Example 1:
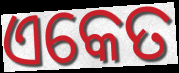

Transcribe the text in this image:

ଏକେତ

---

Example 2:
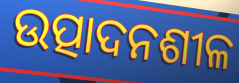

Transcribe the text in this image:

ଉତ୍ପାଦନଶୀଳ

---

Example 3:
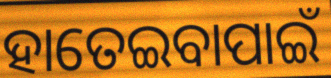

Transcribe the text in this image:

ହାତେଇବାପାଇଁ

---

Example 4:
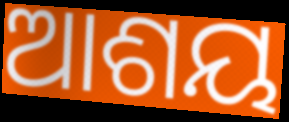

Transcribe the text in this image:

ଆଶୟ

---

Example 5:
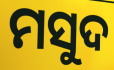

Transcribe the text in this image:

ମସୁଦ